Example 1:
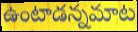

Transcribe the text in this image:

ఉంటాడన్నమాట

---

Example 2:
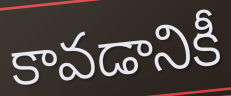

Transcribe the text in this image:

కావడానికీ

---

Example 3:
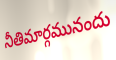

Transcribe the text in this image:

నీతిమార్గమునందు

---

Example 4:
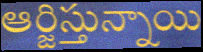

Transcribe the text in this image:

ఆర్జిస్తున్నాయి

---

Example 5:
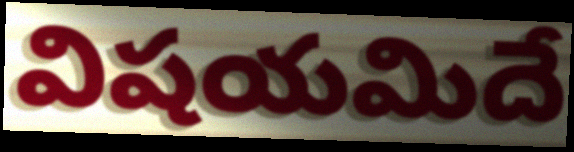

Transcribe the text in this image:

విషయమిదే